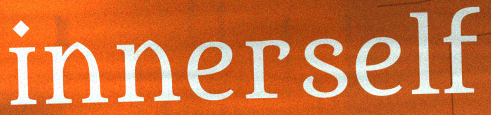
innerself